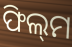
ଫିଲ୍‌ମ